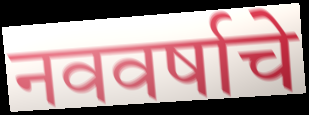
नववर्षाचे